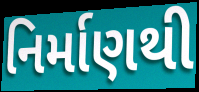
નિર્માણથી